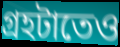
গ্রহটাতেও